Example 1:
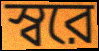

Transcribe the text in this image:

স্বরে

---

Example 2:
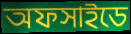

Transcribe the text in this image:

অফসাইডে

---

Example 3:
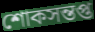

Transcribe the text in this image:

শোকসন্তপ্ত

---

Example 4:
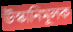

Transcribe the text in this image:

উস্কানিমূলক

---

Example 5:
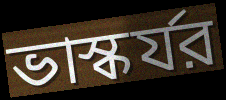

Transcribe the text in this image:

ভাস্কর্যর